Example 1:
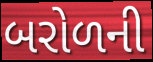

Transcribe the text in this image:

બરોળની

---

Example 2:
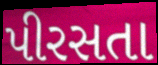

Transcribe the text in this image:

પીરસતા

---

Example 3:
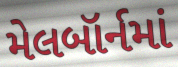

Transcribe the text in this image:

મેલબૉર્નમાં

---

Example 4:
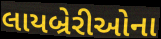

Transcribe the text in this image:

લાયબ્રેરીઓના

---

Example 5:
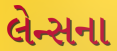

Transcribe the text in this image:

લેન્સના